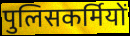
पुलिसकर्मियों